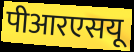
पीआरएसयू